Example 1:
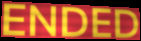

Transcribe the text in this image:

ENDED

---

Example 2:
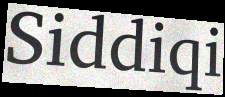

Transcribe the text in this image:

Siddiqi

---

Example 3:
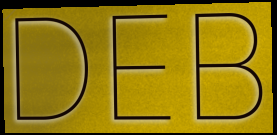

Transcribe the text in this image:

DEB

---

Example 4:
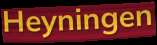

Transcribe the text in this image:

Heyningen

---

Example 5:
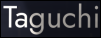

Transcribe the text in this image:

Taguchi